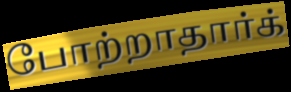
போற்றாதார்க்